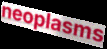
neoplasms